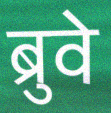
ब्रुवे